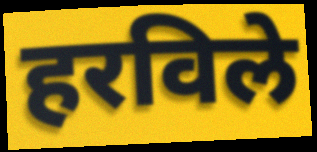
हरविले